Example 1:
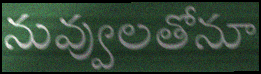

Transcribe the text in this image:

నువ్వులతోనూ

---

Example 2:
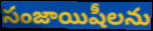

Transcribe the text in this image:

సంజాయిషీలను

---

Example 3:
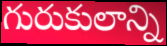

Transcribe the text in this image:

గురుకులాన్ని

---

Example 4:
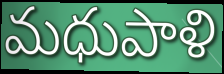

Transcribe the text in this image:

మధుపాళి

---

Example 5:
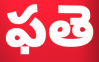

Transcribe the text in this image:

ఫతె